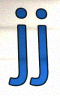
jj